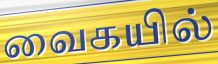
வைகயில்